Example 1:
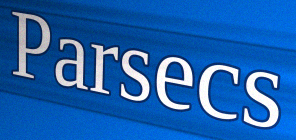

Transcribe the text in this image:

Parsecs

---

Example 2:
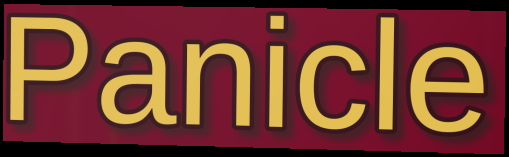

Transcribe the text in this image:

Panicle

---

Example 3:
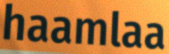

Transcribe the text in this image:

haamlaa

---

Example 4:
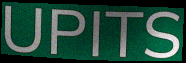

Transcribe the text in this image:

UPITS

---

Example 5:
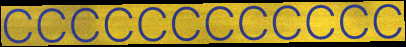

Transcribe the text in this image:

CCCCCCCCCCCC